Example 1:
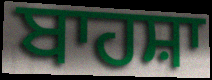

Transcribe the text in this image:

ਬਾਹਸ਼ਾ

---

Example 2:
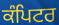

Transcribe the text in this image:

ਕੰਪਿਟਰ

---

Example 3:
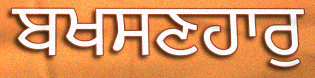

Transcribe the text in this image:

ਬਖਸਣਹਾਰੁ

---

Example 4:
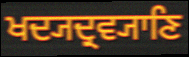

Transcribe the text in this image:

ਖਦ੍ਯਦ੍ਰਵ੍ਯਾਣਿ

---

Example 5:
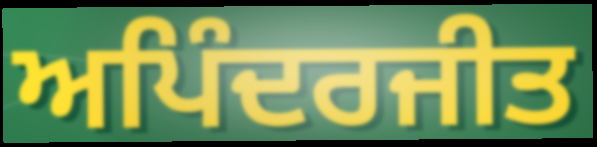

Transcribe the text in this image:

ਅਪਿੰਦਰਜੀਤ